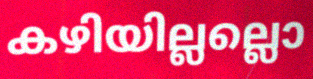
കഴിയില്ലല്ലൊ